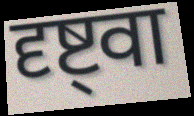
दृष्ट्‍वा